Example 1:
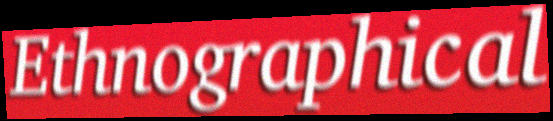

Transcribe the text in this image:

Ethnographical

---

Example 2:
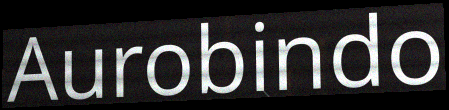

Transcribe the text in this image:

Aurobindo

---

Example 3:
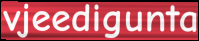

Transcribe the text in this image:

vjeedigunta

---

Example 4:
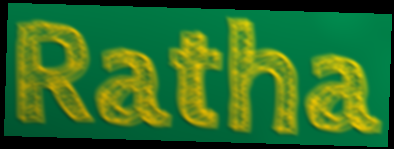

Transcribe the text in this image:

Ratha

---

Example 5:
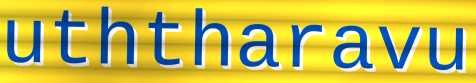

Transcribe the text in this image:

uththaravu